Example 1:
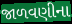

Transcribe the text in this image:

જાળવણીના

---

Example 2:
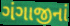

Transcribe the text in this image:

ગંગાજીનાં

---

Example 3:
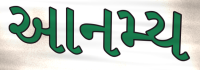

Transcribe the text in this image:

આનમ્ય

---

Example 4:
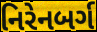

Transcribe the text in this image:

નિરેનબર્ગ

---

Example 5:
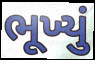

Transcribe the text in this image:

ભૂખ્યું